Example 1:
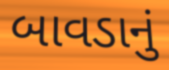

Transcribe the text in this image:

બાવડાનું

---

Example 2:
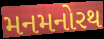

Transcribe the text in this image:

મનમનોરથ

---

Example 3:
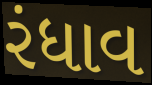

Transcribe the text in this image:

રંધાવ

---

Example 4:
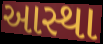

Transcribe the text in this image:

આસ્થા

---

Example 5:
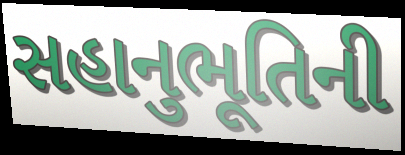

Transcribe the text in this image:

સહાનુભૂતિની